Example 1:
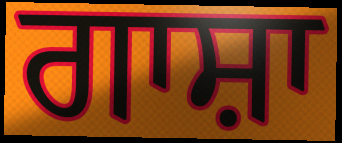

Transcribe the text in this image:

ਗਾਸ਼ਾ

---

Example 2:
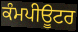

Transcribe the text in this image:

ਕੰਮਪੀਊਟਰ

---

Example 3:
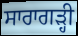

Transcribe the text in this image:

ਸਾਰਾਗੜ੍ਹੀ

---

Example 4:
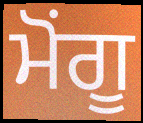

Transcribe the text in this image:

ਮੋਂਗੂ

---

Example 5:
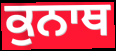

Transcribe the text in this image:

ਕੁਨਾਥ